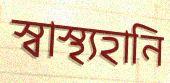
স্বাস্থ্যহানি